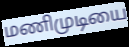
மணிமுடியை